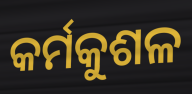
କର୍ମକୁଶଳ